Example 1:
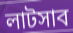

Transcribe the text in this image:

লাটসাব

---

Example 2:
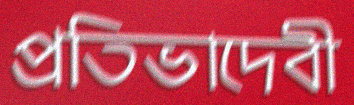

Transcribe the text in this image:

প্রতিভাদেবী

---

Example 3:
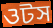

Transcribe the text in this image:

ওটস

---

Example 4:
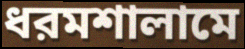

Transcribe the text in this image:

ধরমশালামে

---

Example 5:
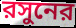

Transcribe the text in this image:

রসুনের